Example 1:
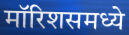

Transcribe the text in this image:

मॉरिशसमध्ये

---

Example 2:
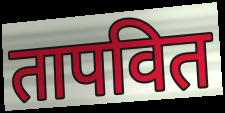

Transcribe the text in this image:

तापवित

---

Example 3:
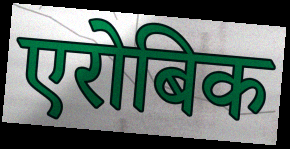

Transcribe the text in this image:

एरोबिक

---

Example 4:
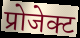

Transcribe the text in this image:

प्रोजेक्ट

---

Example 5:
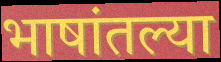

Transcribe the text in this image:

भाषांतल्या